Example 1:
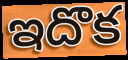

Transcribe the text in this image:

ఇదొక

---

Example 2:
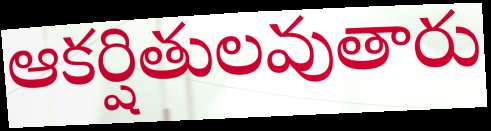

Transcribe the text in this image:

ఆకర్షితులవుతారు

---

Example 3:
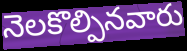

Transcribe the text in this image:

నెలకొల్పినవారు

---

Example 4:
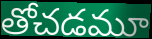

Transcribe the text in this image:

తోచడమూ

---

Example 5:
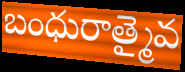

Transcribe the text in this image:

బంధురాత్మైవ